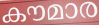
കൗമാര